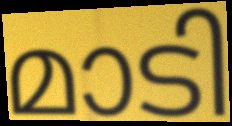
മാടി